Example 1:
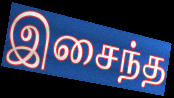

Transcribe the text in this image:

இசைந்த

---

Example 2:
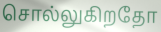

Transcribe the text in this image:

சொல்லுகிறதோ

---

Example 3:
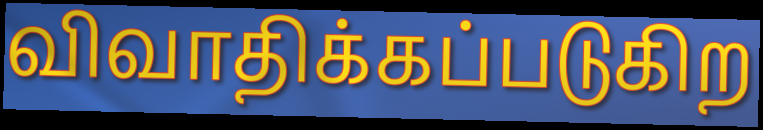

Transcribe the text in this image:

விவாதிக்கப்படுகிற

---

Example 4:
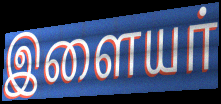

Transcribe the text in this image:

இளையர்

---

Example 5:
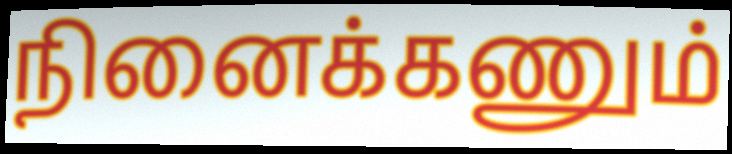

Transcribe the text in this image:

நினைக்கணும்